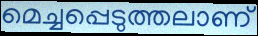
മെച്ചപ്പെടുത്തലാണ്